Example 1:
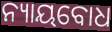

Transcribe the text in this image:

ନ୍ୟାୟବୋଧ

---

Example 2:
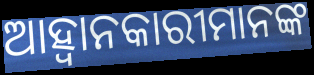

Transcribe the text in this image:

ଆହ୍ଵାନକାରୀମାନଙ୍କ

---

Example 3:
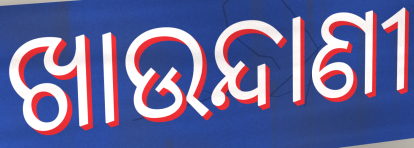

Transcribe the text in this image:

ଖାଉନ୍ଦାଣୀ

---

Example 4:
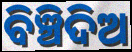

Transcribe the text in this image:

ବିଞ୍ଚିଦିଅ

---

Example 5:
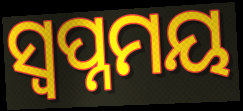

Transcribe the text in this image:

ସ୍ଵପ୍ନମୟ